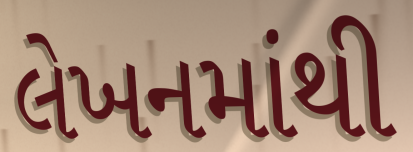
લેખનમાંથી